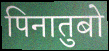
पिनातुबो